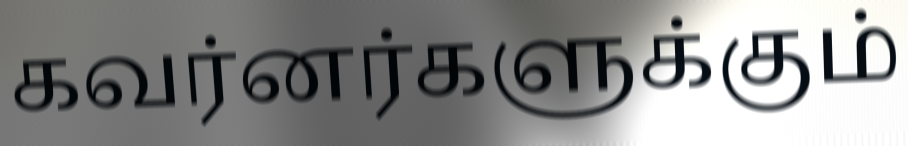
கவர்னர்களுக்கும்